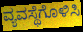
ವ್ಯವಸ್ಥೆಗೊಳಿಸಿ